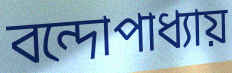
বন্দোপাধ্যায়